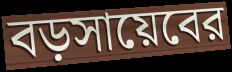
বড়সায়েবের